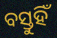
ବସ୍ତୁହିଁ